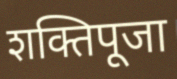
शक्तिपूजा